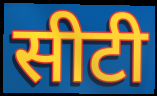
सीटी